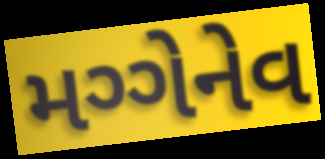
મગ્ગેનેવ